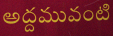
అద్దమువంటి